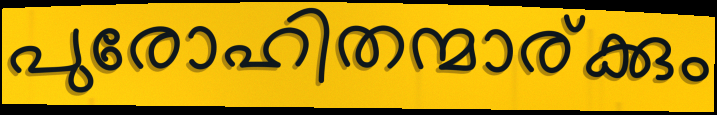
പുരോഹിതന്മാര്ക്കും